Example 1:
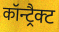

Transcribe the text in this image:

कॉन्‍ट्रैक्‍ट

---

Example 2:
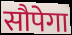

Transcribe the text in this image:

सौपेगा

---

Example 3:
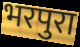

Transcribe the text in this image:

भरपुरा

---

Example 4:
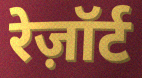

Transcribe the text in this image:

रेज़ॉर्ट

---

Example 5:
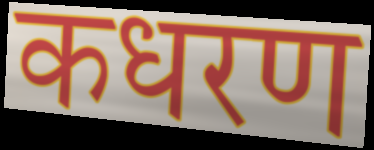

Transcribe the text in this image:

कधरण